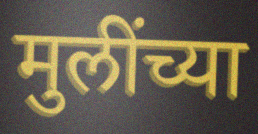
मुलींच्या